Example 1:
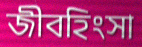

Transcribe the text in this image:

জীবহিংসা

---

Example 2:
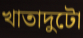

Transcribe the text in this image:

খাতাদুটো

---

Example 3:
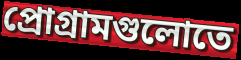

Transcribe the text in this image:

প্রোগ্রামগুলোতে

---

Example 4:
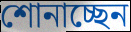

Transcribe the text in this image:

শোনাচ্ছেন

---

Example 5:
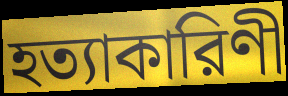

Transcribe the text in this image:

হত্যাকারিণী